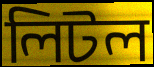
লিটল